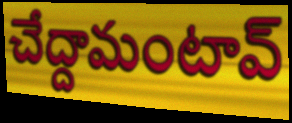
చేద్దామంటావ్